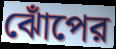
ঝোঁপের